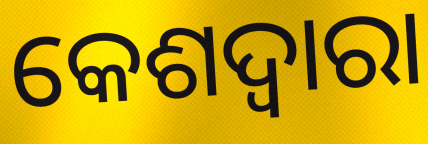
କେଶଦ୍ବାରା